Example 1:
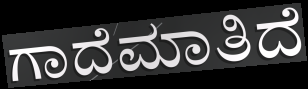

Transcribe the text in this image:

ಗಾದೆಮಾತಿದೆ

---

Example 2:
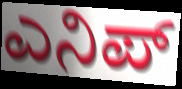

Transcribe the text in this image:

ಎನಿಪ್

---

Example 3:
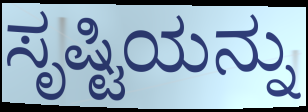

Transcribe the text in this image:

ಸೃಷ್ಟಿಯನ್ನು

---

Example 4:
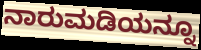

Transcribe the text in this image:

ನಾರುಮಡಿಯನ್ನೂ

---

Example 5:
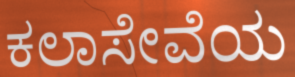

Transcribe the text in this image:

ಕಲಾಸೇವೆಯ